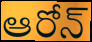
ఆరోన్